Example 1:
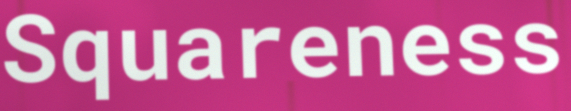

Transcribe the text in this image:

Squareness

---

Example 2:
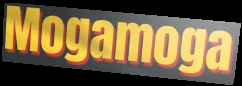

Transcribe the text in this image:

Mogamoga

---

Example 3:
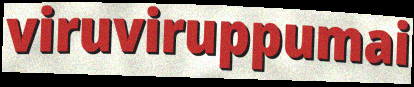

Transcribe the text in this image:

viruviruppumai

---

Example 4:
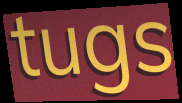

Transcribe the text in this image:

tugs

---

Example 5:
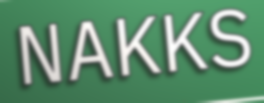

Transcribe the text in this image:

NAKKS